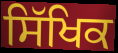
ਸਿੱਖਿਕ